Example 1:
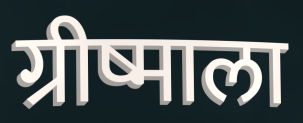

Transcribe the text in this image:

ग्रीष्माला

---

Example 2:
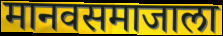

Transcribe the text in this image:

मानवसमाजाला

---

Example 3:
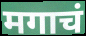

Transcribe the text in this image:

मगाचं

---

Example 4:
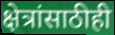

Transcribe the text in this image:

क्षेत्रांसाठीही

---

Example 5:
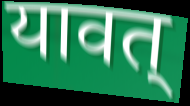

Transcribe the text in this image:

यावत्